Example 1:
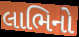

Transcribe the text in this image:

લાભિનો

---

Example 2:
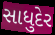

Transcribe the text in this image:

સાધુદેર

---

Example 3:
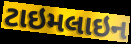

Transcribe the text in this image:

ટાઇમલાઇન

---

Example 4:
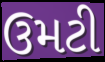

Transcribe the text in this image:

ઉમટી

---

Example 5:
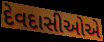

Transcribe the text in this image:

દેવદાસીઓએ